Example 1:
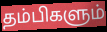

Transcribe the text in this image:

தம்பிகளும்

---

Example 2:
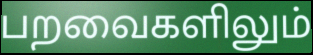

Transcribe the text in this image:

பறவைகளிலும்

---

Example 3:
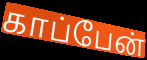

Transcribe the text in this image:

காப்பேன்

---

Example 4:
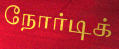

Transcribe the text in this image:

நோர்டிக்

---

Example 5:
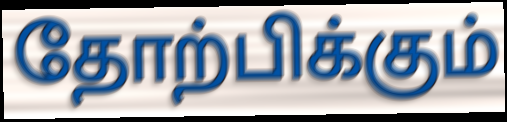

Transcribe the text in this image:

தோற்பிக்கும்